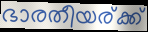
ഭാരതീയര്ക്ക്